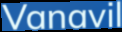
Vanavil